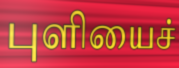
புளியைச்